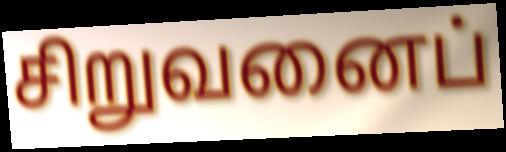
சிறுவனைப்